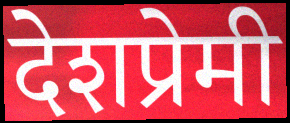
देशप्रेमी